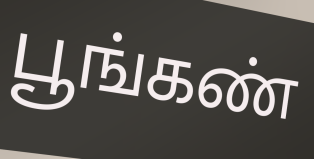
பூங்கண்